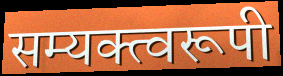
सम्यक्त्वरूपी